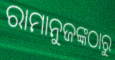
ରାମାନୁଜଙ୍କଠାରୁ